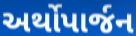
અર્થોપાર્જન